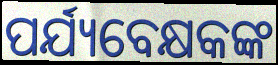
ପର୍ଯ୍ୟବେକ୍ଷକଙ୍କ